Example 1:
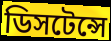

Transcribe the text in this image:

ডিসটেন্সে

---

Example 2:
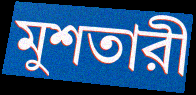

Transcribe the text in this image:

মুশতারী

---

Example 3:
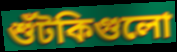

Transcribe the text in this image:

শুঁটকিগুলো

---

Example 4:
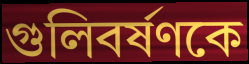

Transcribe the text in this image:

গুলিবর্ষণকে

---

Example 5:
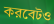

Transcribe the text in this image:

করবেটও